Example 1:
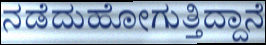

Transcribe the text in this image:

ನಡೆದುಹೋಗುತ್ತಿದ್ದಾನೆ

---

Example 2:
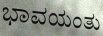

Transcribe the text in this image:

ಭಾವಯಂತು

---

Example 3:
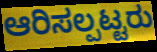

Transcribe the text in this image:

ಆರಿಸಲ್ಪಟ್ಟರು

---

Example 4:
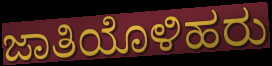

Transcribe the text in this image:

ಜಾತಿಯೊಳಿಹರು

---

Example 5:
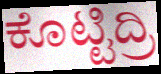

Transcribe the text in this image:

ಕೊಟ್ಟಿದ್ರಿ